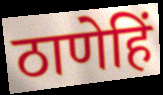
ठाणेहिं